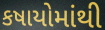
કષાયોમાંથી